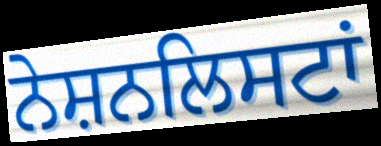
ਨੇਸ਼ਨਲਿਸਟਾਂ